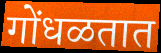
गोंधळतात